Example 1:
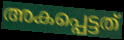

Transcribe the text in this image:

അകപ്പെട്ടത്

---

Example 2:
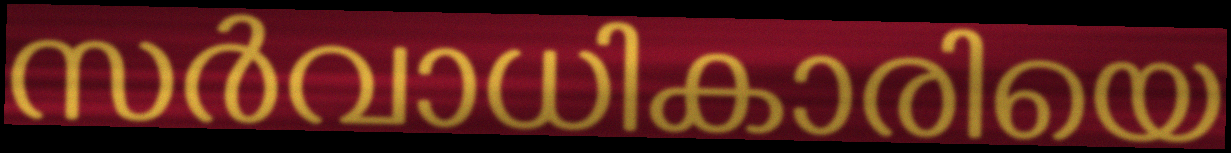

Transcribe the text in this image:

സർവാധികാരിയെ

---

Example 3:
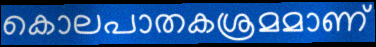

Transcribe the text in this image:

കൊലപാതകശ്രമമാണ്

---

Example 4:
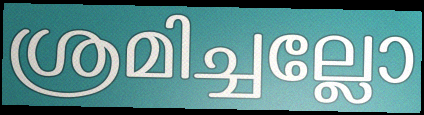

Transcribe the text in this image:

ശ്രമിച്ചല്ലോ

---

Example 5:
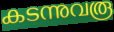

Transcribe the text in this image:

കടന്നുവരൂ